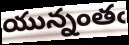
యున్నంతఁ